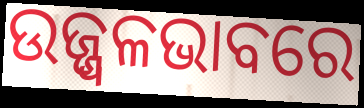
ଉଜ୍ଜ୍ୱଳଭାବରେ